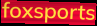
foxsports